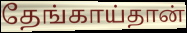
தேங்காய்தான்